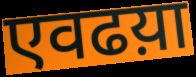
एवढय़ा